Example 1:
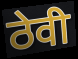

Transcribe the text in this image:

ठेवी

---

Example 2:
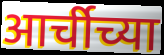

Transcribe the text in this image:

आर्चीच्या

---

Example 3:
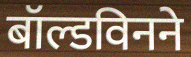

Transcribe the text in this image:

बॉल्डविनने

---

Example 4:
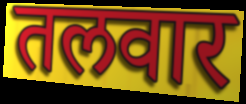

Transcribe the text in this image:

तलवार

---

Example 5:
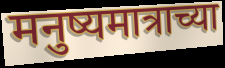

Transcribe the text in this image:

मनुष्यमात्राच्या